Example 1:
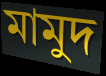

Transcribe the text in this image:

মামুদ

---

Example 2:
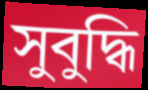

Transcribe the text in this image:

সুবুদ্ধি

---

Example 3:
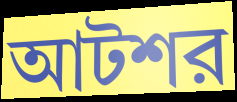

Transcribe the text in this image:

আটশর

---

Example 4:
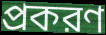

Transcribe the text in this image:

প্রকরণ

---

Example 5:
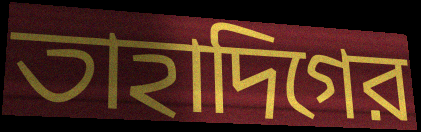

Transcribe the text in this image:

তাহাদিগের